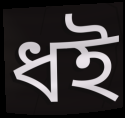
ধই